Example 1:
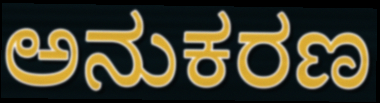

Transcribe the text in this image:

ಅನುಕರಣ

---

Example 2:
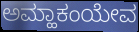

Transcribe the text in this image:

ಅಮ್ಹಾಕಂಯೇವ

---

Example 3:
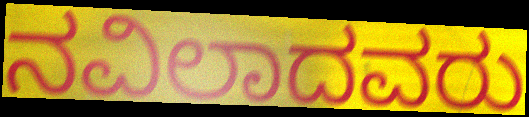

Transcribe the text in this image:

ನವಿಲಾದವರು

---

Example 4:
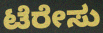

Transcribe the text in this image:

ಟೆರೇಸು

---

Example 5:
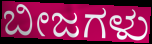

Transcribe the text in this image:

ಬೀಜಗಳು